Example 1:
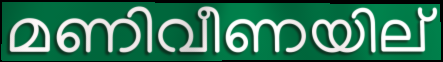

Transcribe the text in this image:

മണിവീണയില്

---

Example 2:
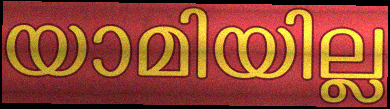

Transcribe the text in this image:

യാമിയില്ല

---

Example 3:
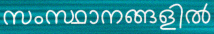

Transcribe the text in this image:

സംസ്ഥാനങ്ങളിൽ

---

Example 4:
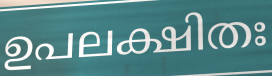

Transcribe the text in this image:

ഉപലക്ഷിതഃ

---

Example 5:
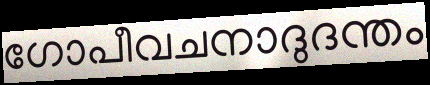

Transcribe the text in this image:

ഗോപീവചനാദുദന്തം